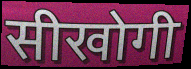
सीखोगी